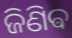
ଜିଣିଵ